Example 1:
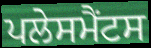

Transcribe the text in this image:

ਪਲੇਸਮੈਂਟਸ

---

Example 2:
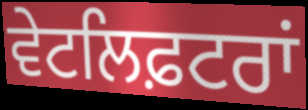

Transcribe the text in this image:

ਵੇਟਲਿਫ਼ਟਰਾਂ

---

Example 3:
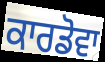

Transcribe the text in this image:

ਕਾਰਡੋਵਾ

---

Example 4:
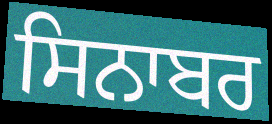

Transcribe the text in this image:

ਸਿਨਾਬਰ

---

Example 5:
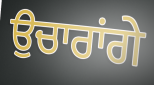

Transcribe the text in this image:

ਉਚਾਰਾਂਗੇ